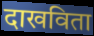
दाखविता